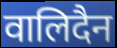
वालिदैन